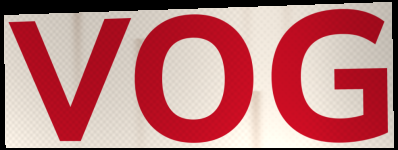
VOG